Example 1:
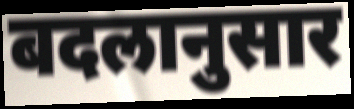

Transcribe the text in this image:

बदलानुसार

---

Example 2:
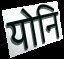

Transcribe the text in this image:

योनि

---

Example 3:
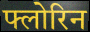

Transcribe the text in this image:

फ्लोरिन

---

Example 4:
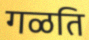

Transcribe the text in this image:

गळति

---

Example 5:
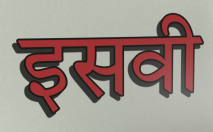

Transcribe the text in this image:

इसवी